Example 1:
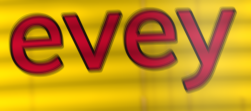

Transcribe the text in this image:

evey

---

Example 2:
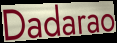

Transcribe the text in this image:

Dadarao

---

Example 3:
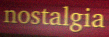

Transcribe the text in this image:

nostalgia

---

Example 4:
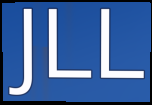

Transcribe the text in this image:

JLL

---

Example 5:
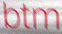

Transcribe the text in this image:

btm